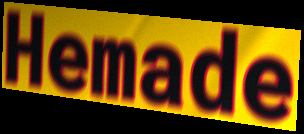
Hemade